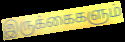
இருக்கைகளும்